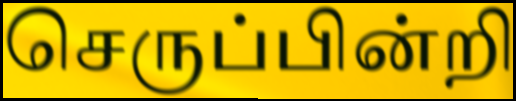
செருப்பின்றி